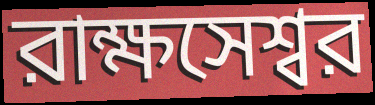
রাক্ষসেশ্বর